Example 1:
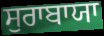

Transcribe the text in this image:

ਸੁਰਾਬਾਯਾ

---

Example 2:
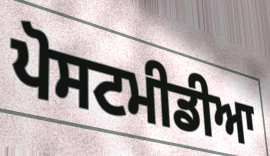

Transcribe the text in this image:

ਪੋਸਟਮੀਡੀਆ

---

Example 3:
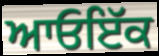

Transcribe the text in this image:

ਆਓਇੱਕ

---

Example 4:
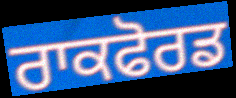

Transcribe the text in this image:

ਰਾਕਫੋਰਡ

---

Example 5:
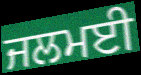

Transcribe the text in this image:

ਜਲਮਈ